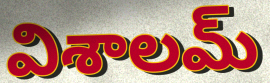
విశాలమ్